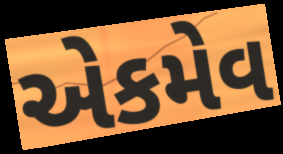
એકમેવ